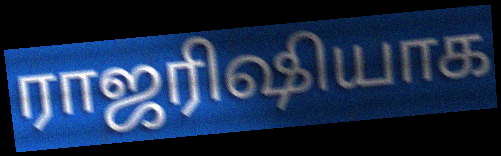
ராஜரிஷியாக